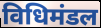
विधिमंडल